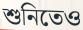
শুনিতেও